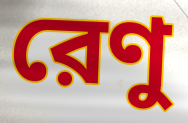
রেণু